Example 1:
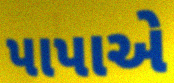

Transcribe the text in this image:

પાપાએ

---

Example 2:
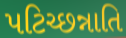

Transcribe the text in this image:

પટિચ્છન્નાતિ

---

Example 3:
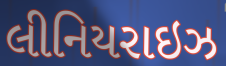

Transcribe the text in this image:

લીનિયરાઇઝ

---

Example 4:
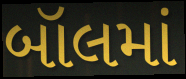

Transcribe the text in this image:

બૉલમાં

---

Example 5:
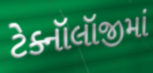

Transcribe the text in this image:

ટેક્નૉલૉજીમાં